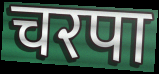
चरपा